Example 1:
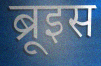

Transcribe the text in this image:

ब्रूइस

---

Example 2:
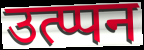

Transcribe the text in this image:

उत्प्पन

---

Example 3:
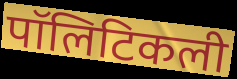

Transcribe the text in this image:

पॉलिटिकली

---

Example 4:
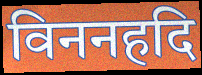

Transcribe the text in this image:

विननहदि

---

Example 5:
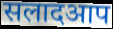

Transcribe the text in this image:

सलादआप